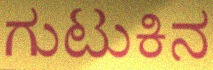
ಗುಟುಕಿನ